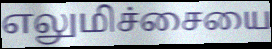
எலுமிச்சையை